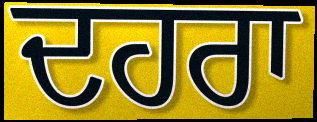
ਦਹਰਾ